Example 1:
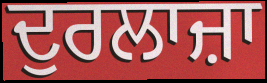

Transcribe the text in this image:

ਦੁਰਲਾਜ਼ਾ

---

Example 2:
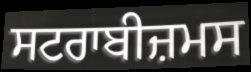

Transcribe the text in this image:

ਸਟਰਾਬੀਜ਼ਮਸ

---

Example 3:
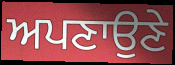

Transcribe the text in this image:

ਅਪਣਾਉਣੇ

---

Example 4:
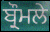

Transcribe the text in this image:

ਬ੍ਰੌਮਲੇ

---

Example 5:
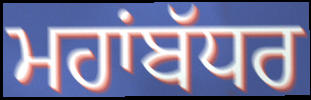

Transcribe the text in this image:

ਮਹਾਂਬੱਧਰ